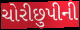
ચોરીછુપીની